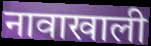
नावाखाली